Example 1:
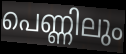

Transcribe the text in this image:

പെണ്ണിലും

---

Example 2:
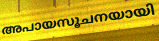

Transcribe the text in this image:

അപായസൂചനയായി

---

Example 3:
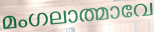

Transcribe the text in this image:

മംഗലാത്മാവേ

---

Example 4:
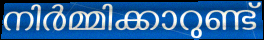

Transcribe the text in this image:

നിർമ്മിക്കാറുണ്ട്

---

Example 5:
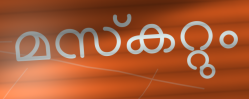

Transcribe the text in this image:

മസ്‌കറ്റും